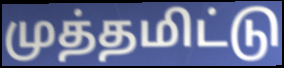
முத்தமிட்டு